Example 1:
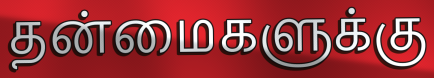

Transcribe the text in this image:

தன்மைகளுக்கு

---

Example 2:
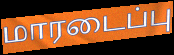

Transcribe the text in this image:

மாரடைப்பு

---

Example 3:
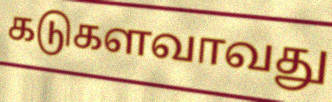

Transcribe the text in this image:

கடுகளவாவது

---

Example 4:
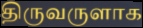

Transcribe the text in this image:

திருவருளாக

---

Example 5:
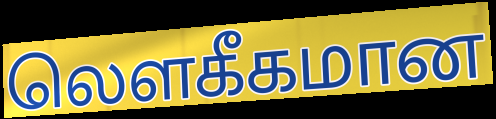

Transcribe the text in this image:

லெளகீகமான